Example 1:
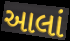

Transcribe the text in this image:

આલાં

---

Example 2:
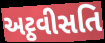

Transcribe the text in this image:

અટ્ઠવીસતિ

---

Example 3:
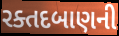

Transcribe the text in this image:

રક્તદબાણની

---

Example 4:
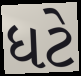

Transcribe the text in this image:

ધટે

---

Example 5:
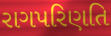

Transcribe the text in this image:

રાગપરિણતિ